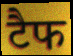
टैफ